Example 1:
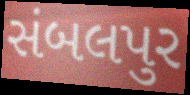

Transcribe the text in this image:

સંબલપુર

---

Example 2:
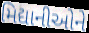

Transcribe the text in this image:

મિદ્યાનીઓને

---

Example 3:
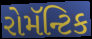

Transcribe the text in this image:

રોમૅન્ટિક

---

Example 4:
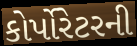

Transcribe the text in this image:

કોર્પોરેટરની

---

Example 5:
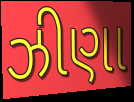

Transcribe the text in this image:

ઝીણા